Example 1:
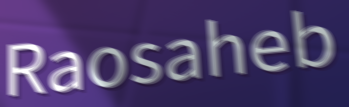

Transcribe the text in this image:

Raosaheb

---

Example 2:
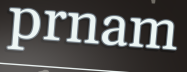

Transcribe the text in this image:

prnam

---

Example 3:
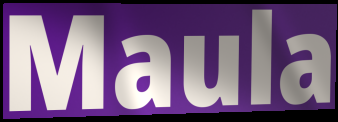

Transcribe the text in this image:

Maula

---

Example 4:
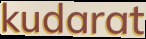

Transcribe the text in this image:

kudarat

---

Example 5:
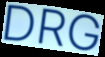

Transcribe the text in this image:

DRG